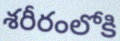
శరీరంలోకి